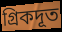
গ্রিকদূত